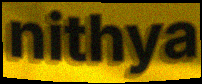
nithya